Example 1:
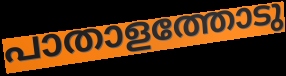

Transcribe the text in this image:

പാതാളത്തോടു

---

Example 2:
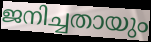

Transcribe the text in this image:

ജനിച്ചതായും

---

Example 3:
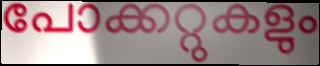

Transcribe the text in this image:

പോക്കറ്റുകളും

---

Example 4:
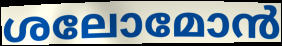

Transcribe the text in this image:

ശലോമോൻ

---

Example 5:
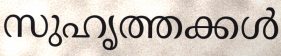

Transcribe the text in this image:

സുഹൃത്തക്കൾ